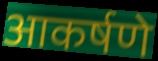
आकर्षणे